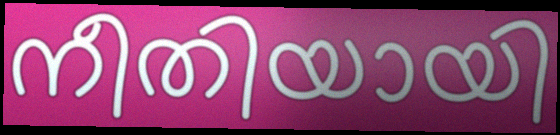
നീതിയായി